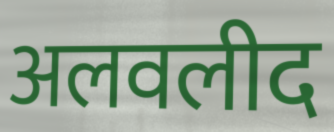
अलवलीद